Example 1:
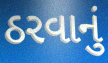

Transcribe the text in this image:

ઠરવાનું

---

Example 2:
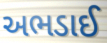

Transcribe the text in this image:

અભડાઈ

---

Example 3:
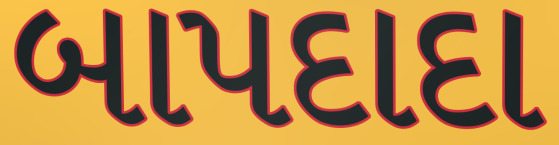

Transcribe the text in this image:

બાપદાદા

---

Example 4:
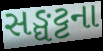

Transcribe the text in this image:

સઙ્ઘટ્ટના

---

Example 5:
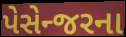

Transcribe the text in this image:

પેસેન્જરના